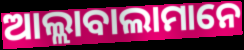
ଆଲ୍ଲାବାଲାମାନେ